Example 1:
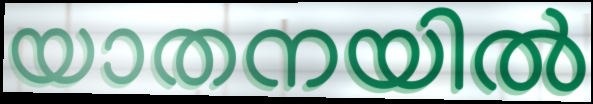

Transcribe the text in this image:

യാതനയിൽ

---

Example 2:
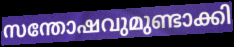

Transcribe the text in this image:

സന്തോഷവുമുണ്ടാക്കി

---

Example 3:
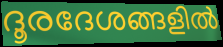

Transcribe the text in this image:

ദൂരദേശങ്ങളിൽ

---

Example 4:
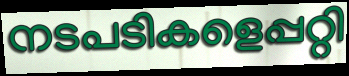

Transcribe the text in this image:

നടപടികളെപ്പറ്റി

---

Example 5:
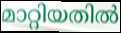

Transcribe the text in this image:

മാറ്റിയതിൽ